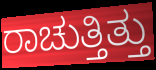
ರಾಚುತ್ತಿತ್ತು